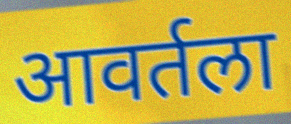
आवर्तला